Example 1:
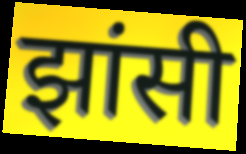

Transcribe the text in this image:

झांसी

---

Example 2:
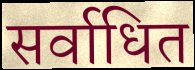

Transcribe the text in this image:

सर्वाधित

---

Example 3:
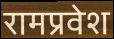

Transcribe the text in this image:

रामप्रवेश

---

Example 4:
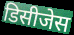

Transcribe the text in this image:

डिसीजेस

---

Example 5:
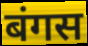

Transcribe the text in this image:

बंगस